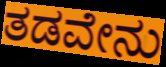
ತಡವೇನು